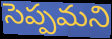
సెప్పమని